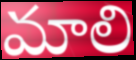
మాలి